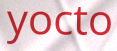
yocto